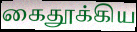
கைதூக்கிய